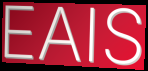
EAIS